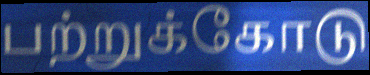
பற்றுக்கோடு